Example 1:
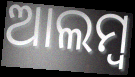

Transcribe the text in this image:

ଆଲମ୍ବ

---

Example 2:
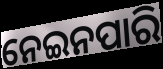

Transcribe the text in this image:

ନେଇନପାରି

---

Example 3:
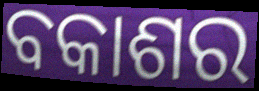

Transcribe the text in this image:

ବକାଶର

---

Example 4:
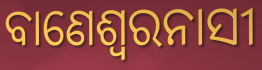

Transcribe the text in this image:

ବାଣେଶ୍ୱରନାସୀ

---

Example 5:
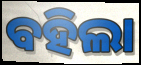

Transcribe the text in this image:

ବହିଲା